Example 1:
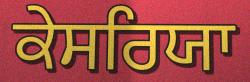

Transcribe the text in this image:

ਕੇਸਰਿਯਾ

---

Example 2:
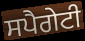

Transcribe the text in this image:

ਸਪੈਗੇਟੀ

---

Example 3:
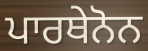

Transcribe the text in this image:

ਪਾਰਥੇਨੋਨ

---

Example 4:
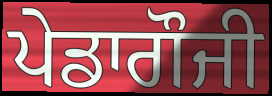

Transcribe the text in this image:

ਪੇਡਾਗੌਜੀ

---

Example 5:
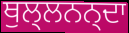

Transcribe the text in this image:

ਥੁਲ੍ਲਨਨ੍ਦਾ